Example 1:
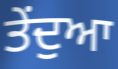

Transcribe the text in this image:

ਤੇਂਦੁਆ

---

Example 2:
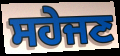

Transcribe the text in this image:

ਸਹੇਜਣ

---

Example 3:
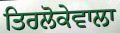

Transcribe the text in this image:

ਤਿਰਲੋਕੇਵਾਲਾ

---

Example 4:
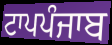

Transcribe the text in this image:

ਟਾਪਪੰਜਾਬ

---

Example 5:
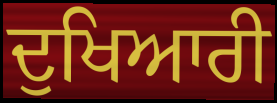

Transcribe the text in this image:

ਦੁਖਿਆਰੀ